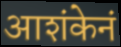
आशंकेनं